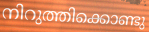
നിറുത്തിക്കൊണ്ടു